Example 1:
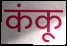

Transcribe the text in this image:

कंकू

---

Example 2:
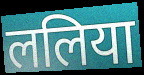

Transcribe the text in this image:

ललिया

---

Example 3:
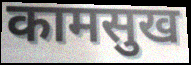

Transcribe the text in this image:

कामसुख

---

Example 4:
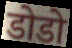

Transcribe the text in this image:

डोडो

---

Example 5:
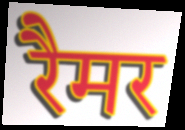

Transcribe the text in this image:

रैमर